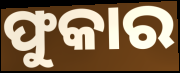
ଫୁକାର